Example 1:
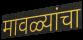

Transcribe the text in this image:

मावळ्यांचा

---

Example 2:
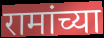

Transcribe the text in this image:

रामांच्या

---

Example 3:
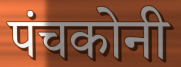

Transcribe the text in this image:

पंचकोनी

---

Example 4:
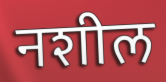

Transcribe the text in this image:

नशील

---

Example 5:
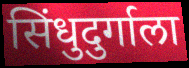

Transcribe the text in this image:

सिंधुदुर्गाला